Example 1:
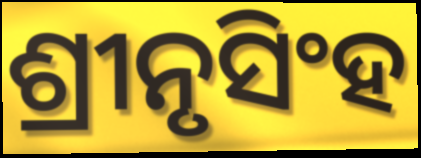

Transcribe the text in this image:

ଶ୍ରୀନୃସିଂହ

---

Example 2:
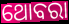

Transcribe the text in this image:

ଥୋବରା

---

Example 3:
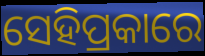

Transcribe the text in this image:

ସେହିପ୍ରକାରେ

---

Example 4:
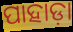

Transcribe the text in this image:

ପାହାଡ଼ା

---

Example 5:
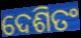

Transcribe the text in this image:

ଦେଶିତଂ